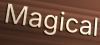
Magical